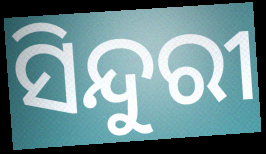
ସିନ୍ଦୁରୀ